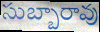
సుబ్బారావు